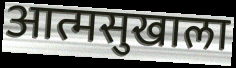
आत्मसुखाला